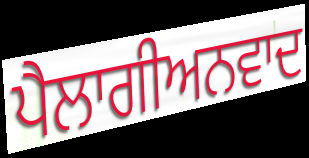
ਪੈਲਾਗੀਅਨਵਾਦ